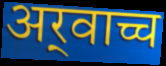
अर्वाच्च